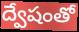
ద్వేషంతో